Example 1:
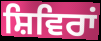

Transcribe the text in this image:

ਸ਼ਿਵਿਰਾਂ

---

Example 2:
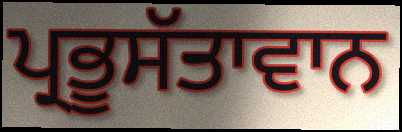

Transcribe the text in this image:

ਪ੍ਰਭੂਸੱਤਾਵਾਨ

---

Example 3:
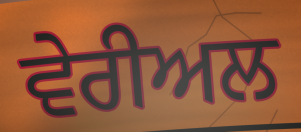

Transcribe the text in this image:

ਵੇਰੀਅਲ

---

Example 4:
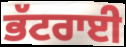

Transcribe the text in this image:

ਭੱਟਰਾਈ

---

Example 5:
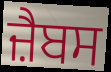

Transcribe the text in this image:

ਜ਼ੈਬਸ